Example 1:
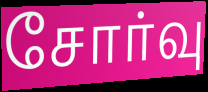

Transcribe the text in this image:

சோர்வு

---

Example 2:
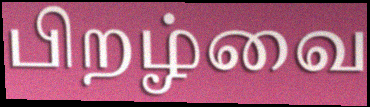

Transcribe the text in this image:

பிறழ்வை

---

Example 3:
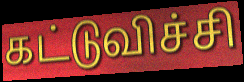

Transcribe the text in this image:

கட்டுவிச்சி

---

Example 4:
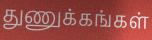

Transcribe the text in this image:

துணுக்கங்கள்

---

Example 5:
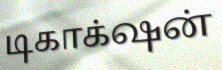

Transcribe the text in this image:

டிகாக்‌ஷன்